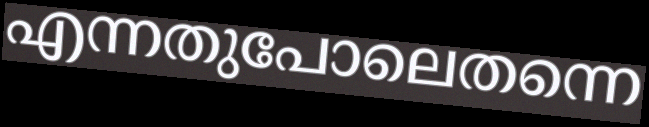
എന്നതുപോലെതന്നെ